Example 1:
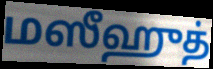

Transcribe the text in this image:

மஸீஹுத்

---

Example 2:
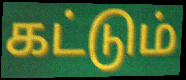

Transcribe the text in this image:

கட்டும்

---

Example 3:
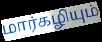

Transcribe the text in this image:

மார்கழியும்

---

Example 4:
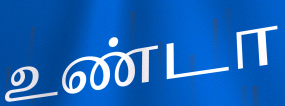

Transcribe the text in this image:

உண்டா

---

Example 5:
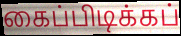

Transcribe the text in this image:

கைப்பிடிக்கப்